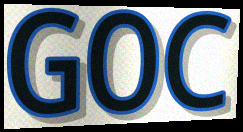
GOC